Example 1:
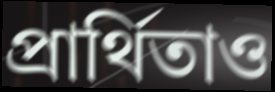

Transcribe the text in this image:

প্রার্থিতাও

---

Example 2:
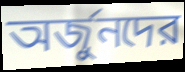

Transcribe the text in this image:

অর্জুনদের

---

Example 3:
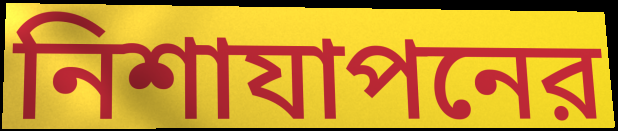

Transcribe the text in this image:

নিশাযাপনের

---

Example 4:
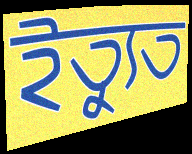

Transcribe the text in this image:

ইত্যুত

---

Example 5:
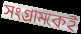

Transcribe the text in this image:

সংগ্রামকেই